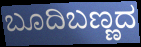
ಬೂದಿಬಣ್ಣದ